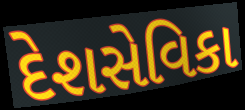
દેશસેવિકા